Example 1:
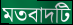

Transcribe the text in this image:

মতবাদটি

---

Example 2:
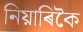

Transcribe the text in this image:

নিয়াৰিকৈ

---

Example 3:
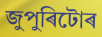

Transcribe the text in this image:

জুপুৰিটোৰ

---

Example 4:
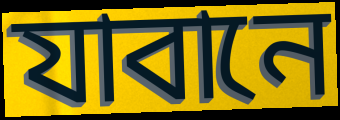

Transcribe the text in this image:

যাবানে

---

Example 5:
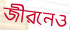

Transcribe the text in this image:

জীৱনেও